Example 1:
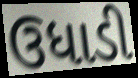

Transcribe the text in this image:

ઉધાડી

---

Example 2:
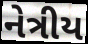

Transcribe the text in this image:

નેત્રીય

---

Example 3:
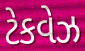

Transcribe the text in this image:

ટેકવેઝ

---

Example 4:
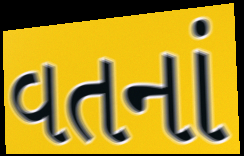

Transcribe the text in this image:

વતનાં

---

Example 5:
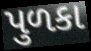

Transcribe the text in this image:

પુળકા